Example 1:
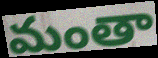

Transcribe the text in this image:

మంతా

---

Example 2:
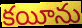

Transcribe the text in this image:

కయీను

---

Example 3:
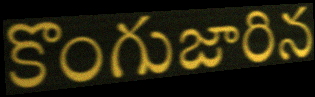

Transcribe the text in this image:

కొంగుజారిన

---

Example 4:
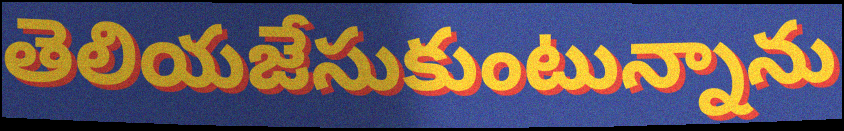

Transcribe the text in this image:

తెలియజేసుకుంటున్నాను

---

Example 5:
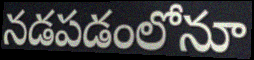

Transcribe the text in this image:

నడపడంలోనూ